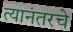
त्यानंतरचे